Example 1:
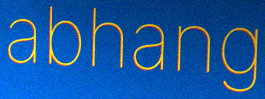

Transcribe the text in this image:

abhang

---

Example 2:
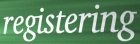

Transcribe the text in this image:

registering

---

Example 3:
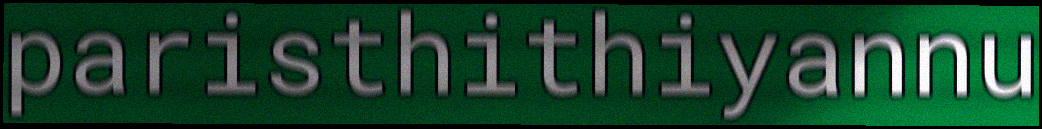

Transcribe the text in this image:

paristhithiyannu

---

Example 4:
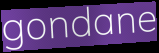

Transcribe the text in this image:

gondane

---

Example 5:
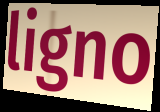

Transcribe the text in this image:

ligno